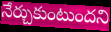
నేర్చుకుంటుందని